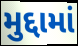
મુદ્દામાં